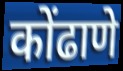
कोंढाणे